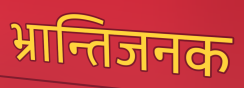
भ्रान्तिजनक